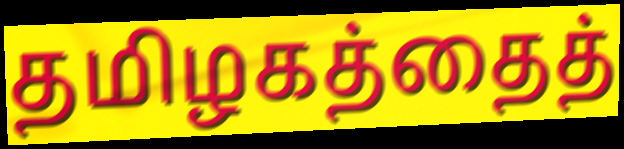
தமிழகத்தைத்